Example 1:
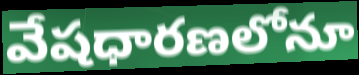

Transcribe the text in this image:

వేషధారణలోనూ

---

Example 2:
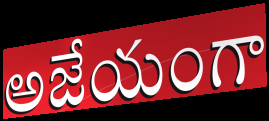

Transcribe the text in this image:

అజేయంగా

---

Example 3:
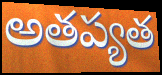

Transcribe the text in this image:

అతప్యత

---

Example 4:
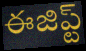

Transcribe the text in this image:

ఈజిప్ట్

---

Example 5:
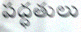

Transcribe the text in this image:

పద్ధతులు